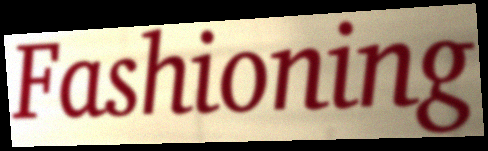
Fashioning